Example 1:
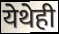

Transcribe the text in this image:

येथेही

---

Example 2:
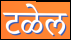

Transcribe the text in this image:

टळेल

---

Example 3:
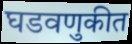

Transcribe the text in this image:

घडवणुकीत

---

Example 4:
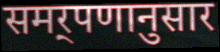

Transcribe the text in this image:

समर्पणानुसार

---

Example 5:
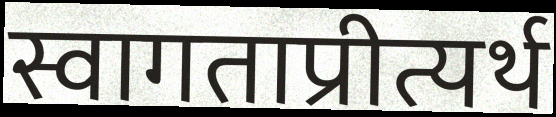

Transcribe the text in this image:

स्वागताप्रीत्यर्थ